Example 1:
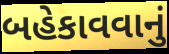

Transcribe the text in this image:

બહેકાવવાનું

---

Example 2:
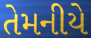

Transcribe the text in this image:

તેમનીયે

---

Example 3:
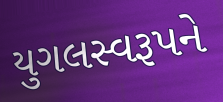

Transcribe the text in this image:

યુગલસ્વરૂપને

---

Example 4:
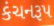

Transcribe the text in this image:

કંચનરૂપ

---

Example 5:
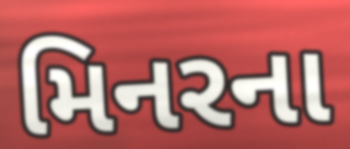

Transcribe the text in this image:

મિનરના